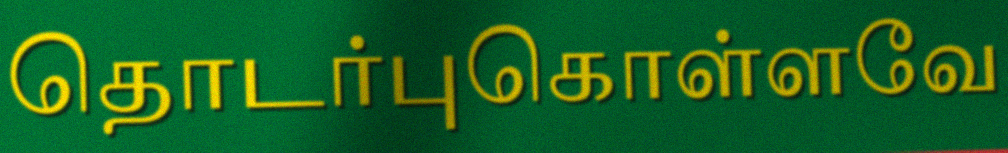
தொடர்புகொள்ளவே